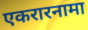
एकरारनामा